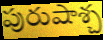
పురుషాశ్చ